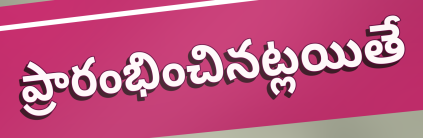
ప్రారంభించినట్లయితే